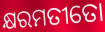
କ୍ଷରମତୀତୋ